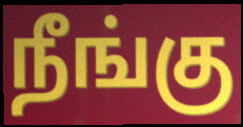
நீங்கு